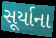
સૂર્યાના